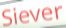
Siever